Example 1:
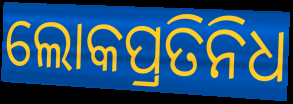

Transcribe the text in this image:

ଲୋକପ୍ରତିନିଧ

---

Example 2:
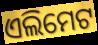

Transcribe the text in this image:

ଏଲିମେଟ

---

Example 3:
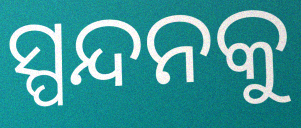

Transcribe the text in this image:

ସ୍ପନ୍ଦନକୁ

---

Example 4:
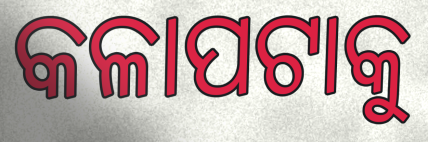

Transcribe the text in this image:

କଳାପଟାକୁ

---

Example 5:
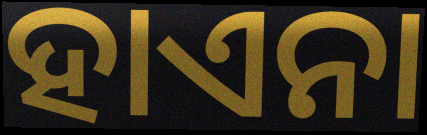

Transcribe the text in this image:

ହାଏନା